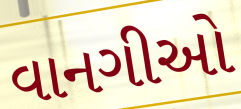
વાનગીઓ